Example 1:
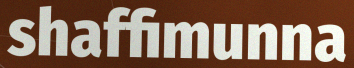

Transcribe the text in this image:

shaffimunna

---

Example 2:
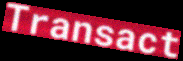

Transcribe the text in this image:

Transact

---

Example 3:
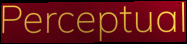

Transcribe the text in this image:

Perceptual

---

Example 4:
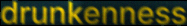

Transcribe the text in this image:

drunkenness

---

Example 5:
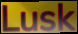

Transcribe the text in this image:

Lusk